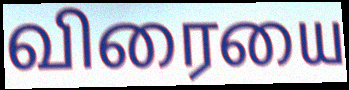
விரையை